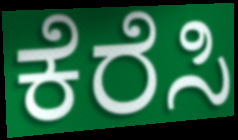
ಕೆರೆಸಿ